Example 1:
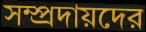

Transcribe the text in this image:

সম্প্রদায়দের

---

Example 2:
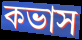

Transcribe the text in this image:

কভাস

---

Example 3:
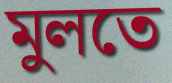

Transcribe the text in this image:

মুলতে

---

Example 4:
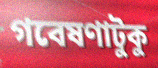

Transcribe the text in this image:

গবেষণাটুকু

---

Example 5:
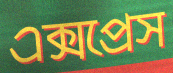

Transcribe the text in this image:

এক্সপ্রেস